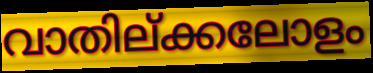
വാതില്ക്കലോളം